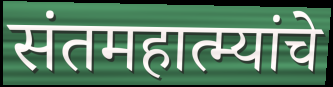
संतमहात्म्यांचे